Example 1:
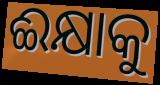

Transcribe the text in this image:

ଈକ୍ଷାକୁ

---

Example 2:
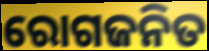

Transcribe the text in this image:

ରୋଗଜନିତ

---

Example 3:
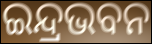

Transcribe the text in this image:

ଇନ୍ଦ୍ରଭବନ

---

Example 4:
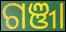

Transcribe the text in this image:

ଗଞ୍ଜା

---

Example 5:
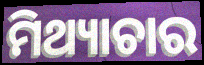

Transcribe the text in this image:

ମିଥ୍ୟାଚାର